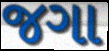
જગા